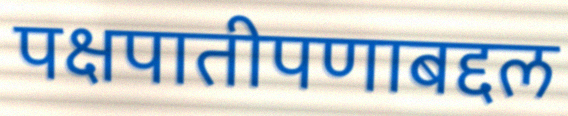
पक्षपातीपणाबद्दल